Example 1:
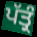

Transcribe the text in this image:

ਪੱਤ੍ਰੰ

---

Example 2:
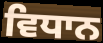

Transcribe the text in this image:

ਵਿਧਾਨ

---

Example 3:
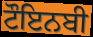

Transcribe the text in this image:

ਟੌਇਨਬੀ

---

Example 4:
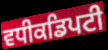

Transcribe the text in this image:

ਵਧੀਕਡਿਪਟੀ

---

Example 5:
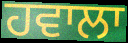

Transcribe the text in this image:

ਹਵਾਲਾ